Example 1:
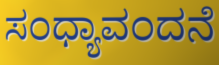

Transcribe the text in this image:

ಸಂಧ್ಯಾವಂದನೆ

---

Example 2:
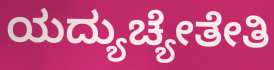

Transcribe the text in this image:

ಯದ್ಯುಚ್ಯೇತೇತಿ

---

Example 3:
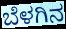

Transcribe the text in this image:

ಬೆಳಗಿನ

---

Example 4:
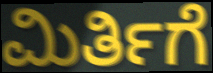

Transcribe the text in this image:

ಮಿರ್ತಿಗೆ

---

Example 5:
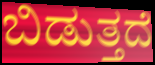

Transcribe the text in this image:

ಬಿಡುತ್ತದೆ